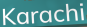
Karachi